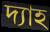
দ্যাহ